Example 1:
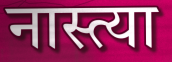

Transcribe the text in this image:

नास्त्या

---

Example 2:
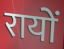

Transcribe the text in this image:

रायों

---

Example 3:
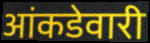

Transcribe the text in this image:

आंकडेवारी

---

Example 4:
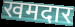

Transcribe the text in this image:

खमदार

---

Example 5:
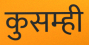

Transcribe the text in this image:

कुसम्ही